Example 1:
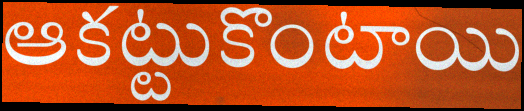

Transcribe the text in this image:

ఆకట్టుకొంటాయి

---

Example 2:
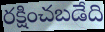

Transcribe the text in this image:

రక్షించబడేది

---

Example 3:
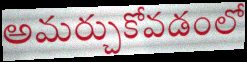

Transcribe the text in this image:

అమర్చుకోవడంలో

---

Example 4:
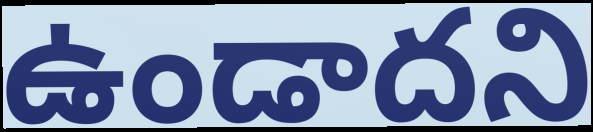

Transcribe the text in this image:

ఉండాదని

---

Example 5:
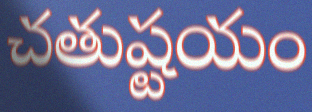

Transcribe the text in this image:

చతుష్టయం